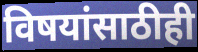
विषयांसाठीही